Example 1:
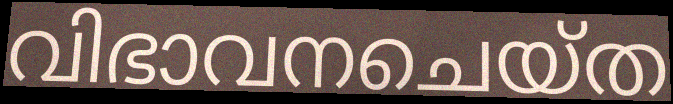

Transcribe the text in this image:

വിഭാവനചെയ്ത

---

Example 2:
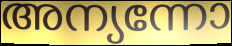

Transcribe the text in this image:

അന്യന്നോ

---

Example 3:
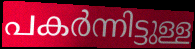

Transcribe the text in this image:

പകർന്നിട്ടുള്ള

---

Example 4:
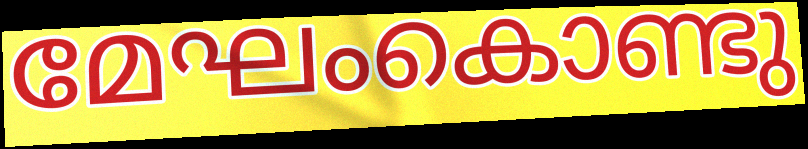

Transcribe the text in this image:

മേഘംകൊണ്ടു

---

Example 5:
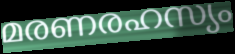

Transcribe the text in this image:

മരണരഹസ്യം